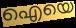
ഐയെ